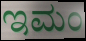
ಇಮಂ